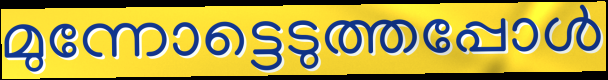
മുന്നോട്ടെടുത്തപ്പോൾ